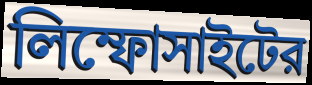
লিম্ফোসাইটের